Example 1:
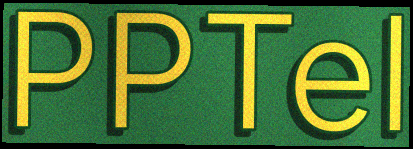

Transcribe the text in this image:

PPTel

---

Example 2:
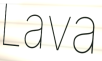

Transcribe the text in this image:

Lava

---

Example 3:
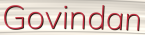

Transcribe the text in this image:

Govindan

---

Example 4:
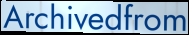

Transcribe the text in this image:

Archivedfrom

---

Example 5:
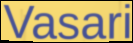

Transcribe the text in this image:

Vasari